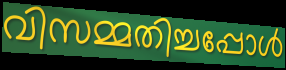
വിസമ്മതിച്ചപ്പോൾ